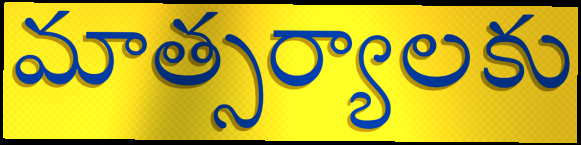
మాత్సర్యాలకు